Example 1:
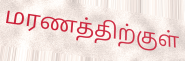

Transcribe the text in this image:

மரணத்திற்குள்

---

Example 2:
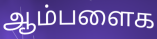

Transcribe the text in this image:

ஆம்பளைக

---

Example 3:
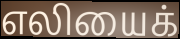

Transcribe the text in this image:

எலியைக்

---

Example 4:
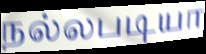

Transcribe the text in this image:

நல்லபடியா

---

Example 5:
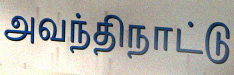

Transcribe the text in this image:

அவந்திநாட்டு